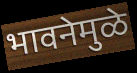
भावनेमुळे